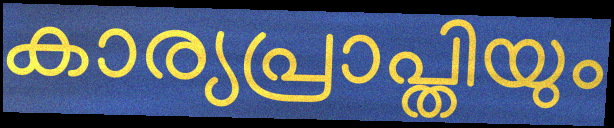
കാര്യപ്രാപ്തിയും